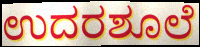
ಉದರಶೂಲೆ